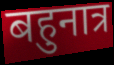
बहुनात्र